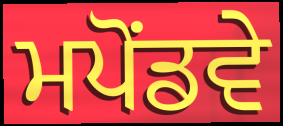
ਮਪੋਂਡਵੇ